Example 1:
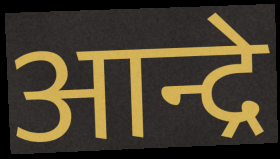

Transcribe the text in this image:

आन्द्रे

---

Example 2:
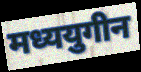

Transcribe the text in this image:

मध्ययुगीन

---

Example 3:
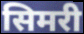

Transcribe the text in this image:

सिमरी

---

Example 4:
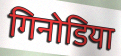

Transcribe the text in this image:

गिनोडिया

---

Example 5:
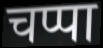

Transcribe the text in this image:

चप्पा